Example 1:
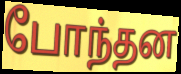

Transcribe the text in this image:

போந்தன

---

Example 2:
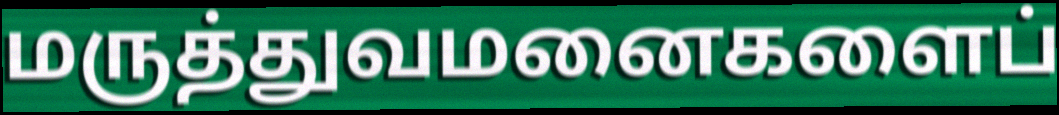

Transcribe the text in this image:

மருத்துவமனைகளைப்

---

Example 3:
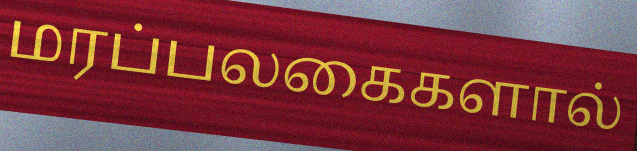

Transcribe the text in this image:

மரப்பலகைகளால்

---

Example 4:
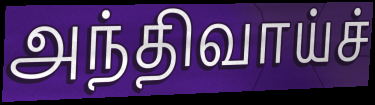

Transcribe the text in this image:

அந்திவாய்ச்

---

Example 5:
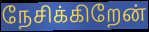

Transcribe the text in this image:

நேசிக்கிறேன்